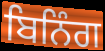
ਬਿਨਿੰਗ